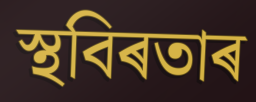
স্থবিৰতাৰ